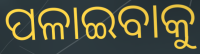
ପଳାଇବାକୁ